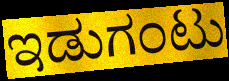
ಇಡುಗಂಟು